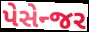
પેસેન્જર